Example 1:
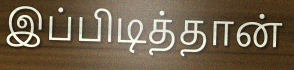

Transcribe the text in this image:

இப்பிடித்தான்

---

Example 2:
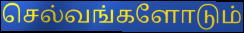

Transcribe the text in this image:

செல்வங்களோடும்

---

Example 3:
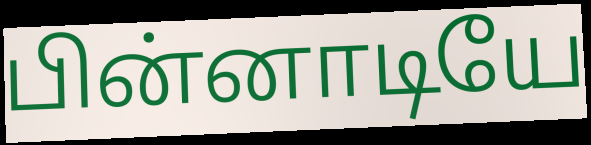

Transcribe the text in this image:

பின்னாடியே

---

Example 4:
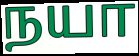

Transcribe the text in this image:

நயா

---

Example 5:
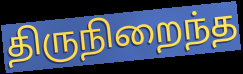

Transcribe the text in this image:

திருநிறைந்த